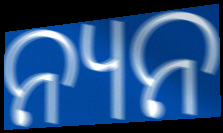
ନ୍ୟନ